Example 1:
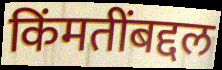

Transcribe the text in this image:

किंमतींबद्दल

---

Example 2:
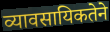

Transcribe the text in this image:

व्यावसायिकतेने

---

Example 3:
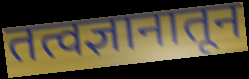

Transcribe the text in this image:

तत्वज्ञानातून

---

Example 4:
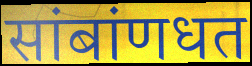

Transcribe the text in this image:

सांबांणधत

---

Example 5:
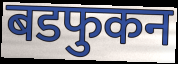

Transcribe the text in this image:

बडफुकन